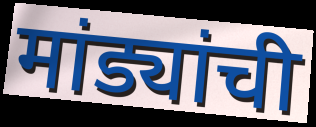
मांड्यांची